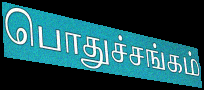
பொதுச்சங்கம்